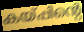
കയ്പ്പിന്റെ